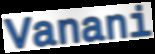
Vanani